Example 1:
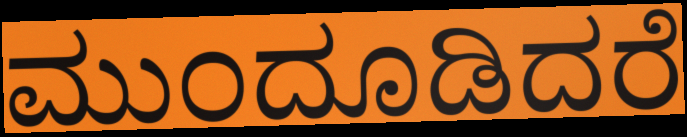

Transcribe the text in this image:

ಮುಂದೂಡಿದರೆ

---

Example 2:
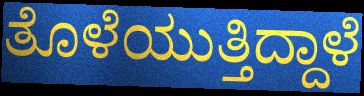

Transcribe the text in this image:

ತೊಳೆಯುತ್ತಿದ್ದಾಳೆ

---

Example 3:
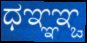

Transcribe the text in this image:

ಧಞ್ಞಞ್ಚ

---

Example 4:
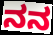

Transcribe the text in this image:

ನನ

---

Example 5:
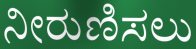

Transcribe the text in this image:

ನೀರುಣಿಸಲು